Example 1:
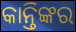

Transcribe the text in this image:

କାନ୍ତିଙ୍କର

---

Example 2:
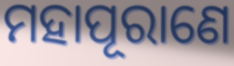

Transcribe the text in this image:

ମହାପୂରାଣେ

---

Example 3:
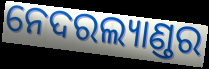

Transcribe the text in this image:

ନେଦରଲ୍ୟାଣ୍ଡର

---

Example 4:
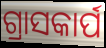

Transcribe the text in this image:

ଗ୍ରାସକାର୍ପ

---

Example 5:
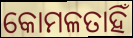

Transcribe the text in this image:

କୋମଳତାହିଁ